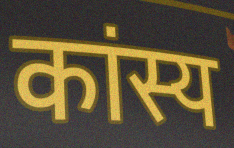
कांस्य